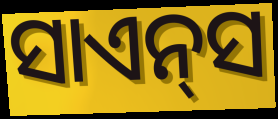
ସାଏନ୍‌ସ